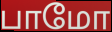
பாமோ